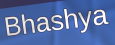
Bhashya